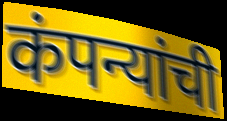
कंपन्यांची